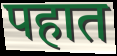
पहात